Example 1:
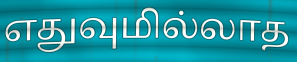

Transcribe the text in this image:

எதுவுமில்லாத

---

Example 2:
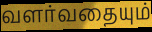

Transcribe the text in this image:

வளர்வதையும்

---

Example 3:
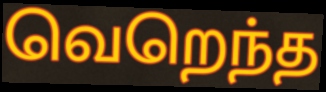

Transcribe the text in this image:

வெறெந்த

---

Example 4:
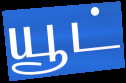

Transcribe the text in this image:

யூட்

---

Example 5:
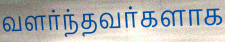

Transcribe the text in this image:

வளர்ந்தவர்களாக